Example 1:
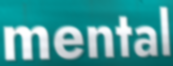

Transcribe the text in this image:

mental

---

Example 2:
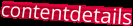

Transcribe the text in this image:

contentdetails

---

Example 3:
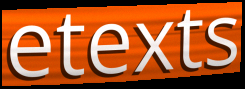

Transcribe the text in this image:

etexts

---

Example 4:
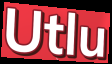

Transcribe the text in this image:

Utlu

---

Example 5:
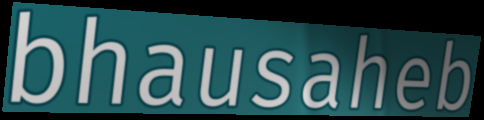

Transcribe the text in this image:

bhausaheb